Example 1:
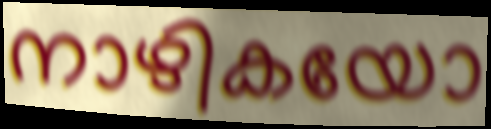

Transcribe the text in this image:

നാഴികയോ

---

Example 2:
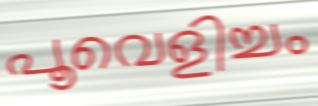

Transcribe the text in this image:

പൂവെളിച്ചം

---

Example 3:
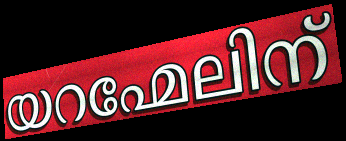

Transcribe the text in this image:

യറഹ്മേലിന്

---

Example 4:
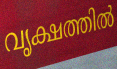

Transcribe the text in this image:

വൃക്ഷത്തിൽ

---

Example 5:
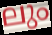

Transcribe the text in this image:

ലും